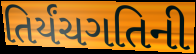
તિર્યંચગતિની